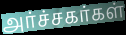
அர்ச்சகர்கள்